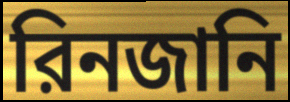
রিনজানি